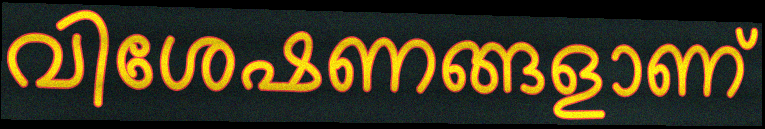
വിശേഷണങ്ങളാണ്